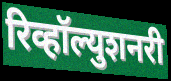
रिव्हॉल्युशनरी